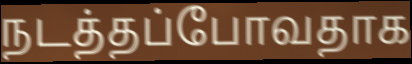
நடத்தப்போவதாக